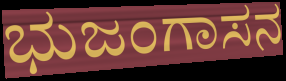
ಭುಜಂಗಾಸನ